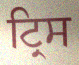
ਟ੍ਰਿਸ